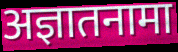
अज्ञातनामा